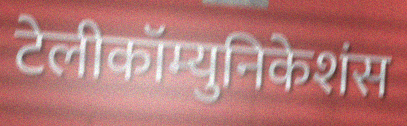
टेलीकॉम्युनिकेशंस